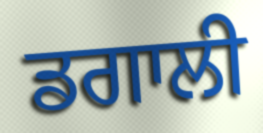
ਡਗਾਲੀ